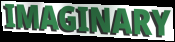
IMAGINARY